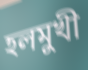
হলমুখী